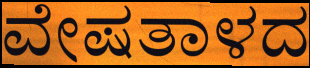
ವೇಷತಾಳದ